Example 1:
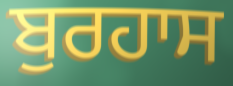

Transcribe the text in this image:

ਬੁਰਹਾਸ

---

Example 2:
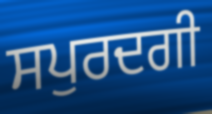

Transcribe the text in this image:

ਸਪੁਰਦਗੀ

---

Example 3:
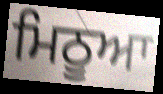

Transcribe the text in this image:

ਮਿਠੂਆ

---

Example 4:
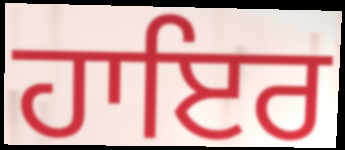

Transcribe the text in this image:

ਹਾਇਰ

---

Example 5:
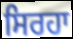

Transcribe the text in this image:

ਸਿਰਹਾ